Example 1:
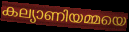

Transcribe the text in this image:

കല്യാണിയമ്മയെ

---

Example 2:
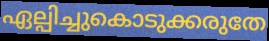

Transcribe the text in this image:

ഏല്പിച്ചുകൊടുക്കരുതേ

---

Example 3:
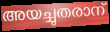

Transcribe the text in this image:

അയച്ചുതരാന്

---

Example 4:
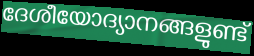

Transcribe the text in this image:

ദേശീയോദ്യാനങ്ങളുണ്ട്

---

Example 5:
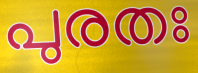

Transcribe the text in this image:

പുരതഃ